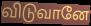
விடுவானே